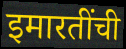
इमारतींची